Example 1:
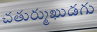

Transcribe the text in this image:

చతుర్ముఖుడగు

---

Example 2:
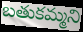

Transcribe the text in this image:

బతుకమ్మని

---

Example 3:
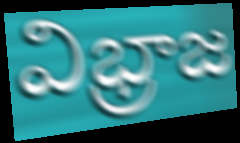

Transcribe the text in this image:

విభ్రాజ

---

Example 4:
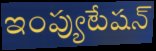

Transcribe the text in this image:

ఇంప్యుటేషన్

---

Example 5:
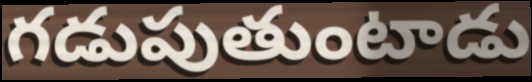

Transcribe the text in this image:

గడుపుతుంటాడు